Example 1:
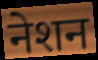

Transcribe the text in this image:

नेशन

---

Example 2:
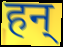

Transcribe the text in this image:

हन्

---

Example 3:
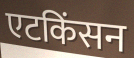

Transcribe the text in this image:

एटकिंसन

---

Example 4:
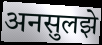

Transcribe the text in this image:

अनसुलझे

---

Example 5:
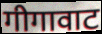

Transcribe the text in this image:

गीगावाट